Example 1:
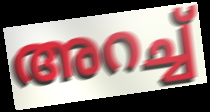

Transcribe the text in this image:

അറച്ച്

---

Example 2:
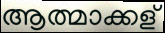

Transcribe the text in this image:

ആത്മാക്കള്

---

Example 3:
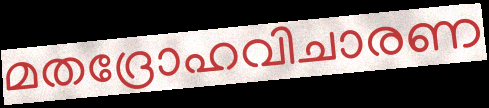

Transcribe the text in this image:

മതദ്രോഹവിചാരണ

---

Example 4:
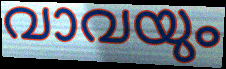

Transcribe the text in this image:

വാവയും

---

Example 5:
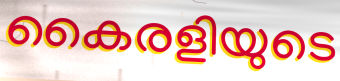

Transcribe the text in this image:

കൈരളിയുടെ